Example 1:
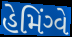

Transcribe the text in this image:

હેમિંગ્વે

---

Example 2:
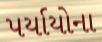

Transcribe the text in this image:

પર્યાયોના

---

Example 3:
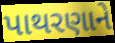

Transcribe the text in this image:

પાથરણાને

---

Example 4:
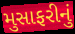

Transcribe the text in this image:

મુસાફરીનું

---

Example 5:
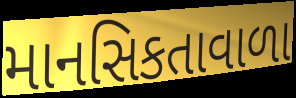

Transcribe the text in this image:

માનસિકતાવાળા